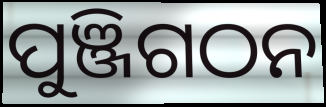
ପୁଞ୍ଜିଗଠନ